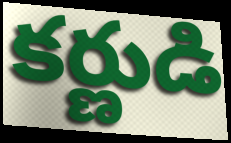
కర్ణుడి